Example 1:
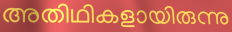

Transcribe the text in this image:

അതിഥികളായിരുന്നു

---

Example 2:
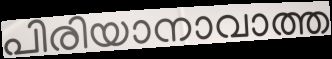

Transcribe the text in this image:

പിരിയാനാവാത്ത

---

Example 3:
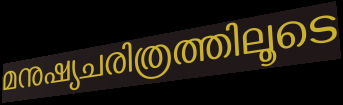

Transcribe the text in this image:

മനുഷ്യചരിത്രത്തിലൂടെ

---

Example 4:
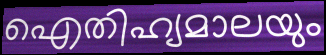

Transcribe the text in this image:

ഐതിഹ്യമാലയും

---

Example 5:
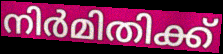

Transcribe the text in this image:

നിർമിതിക്ക്